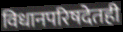
विधानपरिषदेतही